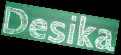
Desika